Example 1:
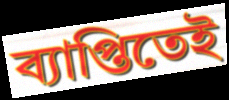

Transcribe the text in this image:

ব্যাপ্তিতেই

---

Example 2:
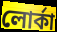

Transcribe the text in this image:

লোর্কা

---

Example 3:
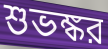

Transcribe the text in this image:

শুভঙ্কর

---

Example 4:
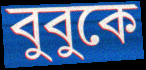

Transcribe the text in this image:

বুবুকে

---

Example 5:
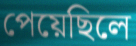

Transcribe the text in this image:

পেয়েছিলে